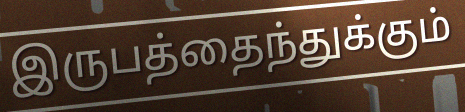
இருபத்தைந்துக்கும்